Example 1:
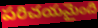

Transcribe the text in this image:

పరిచయమైంది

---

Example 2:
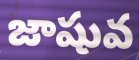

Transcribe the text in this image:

జాషువ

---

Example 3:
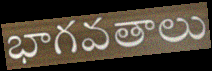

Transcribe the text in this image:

భాగవతాలు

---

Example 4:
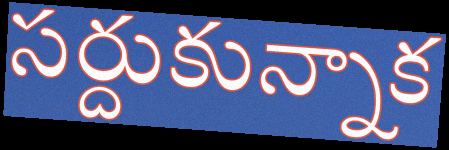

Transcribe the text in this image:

సర్దుకున్నాక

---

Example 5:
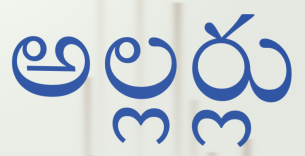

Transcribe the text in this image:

అల్లర్లు